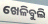
ଖେଳିବୁଲି